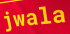
jwala